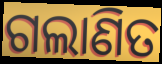
ଗଲାଣିତ